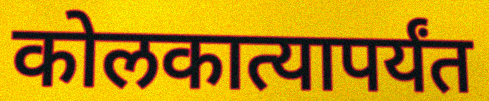
कोलकात्यापर्यंत